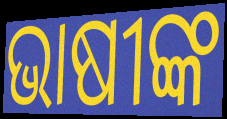
ଭାଷୀଙ୍କ